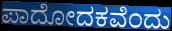
ಪಾದೋದಕವೆಂದು